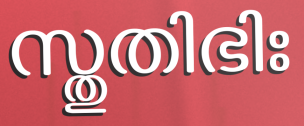
സ്തുതിഭിഃ